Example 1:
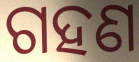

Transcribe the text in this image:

ଗହଣ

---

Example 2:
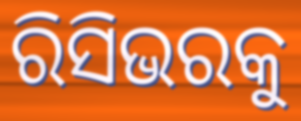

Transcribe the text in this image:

ରିସିଭରକୁ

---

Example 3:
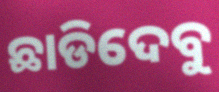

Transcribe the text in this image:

ଛାଡିଦେବୁ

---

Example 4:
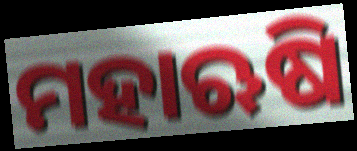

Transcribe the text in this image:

ମହାଋଷି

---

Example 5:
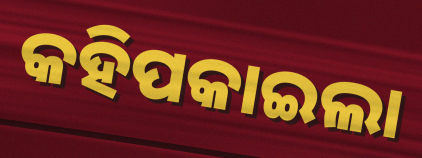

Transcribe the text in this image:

କହିପକାଇଲା